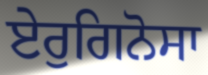
ਏਰੁਗਿਨੋਸਾ